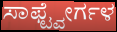
ಸಾಫ್ಟ್ವೇರ್ಗಳ